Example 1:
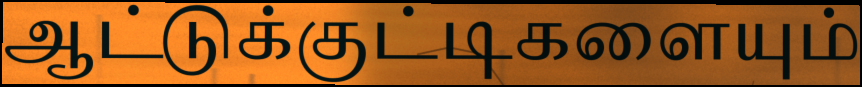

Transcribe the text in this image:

ஆட்டுக்குட்டிகளையும்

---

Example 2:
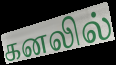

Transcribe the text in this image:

கனலில்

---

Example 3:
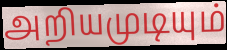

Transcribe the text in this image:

அறியமுடியும்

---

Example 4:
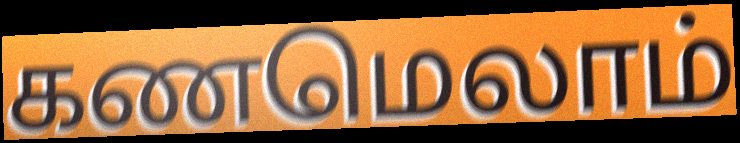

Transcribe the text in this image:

கணமெலாம்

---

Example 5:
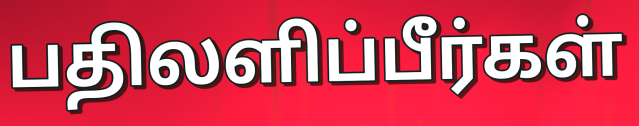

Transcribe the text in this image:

பதிலளிப்பீர்கள்